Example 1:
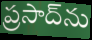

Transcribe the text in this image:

ప్రసాద్‌ను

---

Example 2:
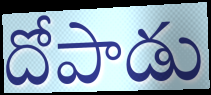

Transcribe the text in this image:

దోపాడు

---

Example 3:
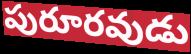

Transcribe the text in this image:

పురూరవుడు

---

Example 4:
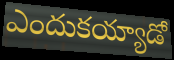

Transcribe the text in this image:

ఎందుకయ్యాడో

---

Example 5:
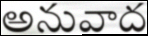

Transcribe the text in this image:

అనువాద